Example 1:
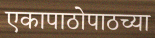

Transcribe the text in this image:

एकापाठोपाठच्या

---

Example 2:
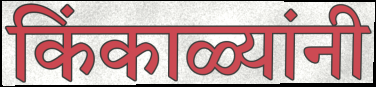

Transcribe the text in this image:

किंकाळ्यांनी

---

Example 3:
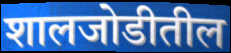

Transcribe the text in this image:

शालजोडीतील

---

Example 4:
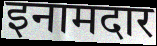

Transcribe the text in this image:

इनामदार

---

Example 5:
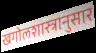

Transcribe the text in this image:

खगोलशास्त्रानुसार